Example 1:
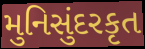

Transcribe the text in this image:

મુનિસુંદરકૃત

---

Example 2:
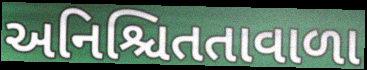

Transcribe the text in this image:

અનિશ્ચિતતાવાળા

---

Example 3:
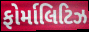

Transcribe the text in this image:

ફોર્માલિટિઝ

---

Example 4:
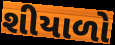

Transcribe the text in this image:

શીયાળો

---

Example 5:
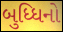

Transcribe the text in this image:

બુધ્ધિનો